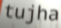
tujha